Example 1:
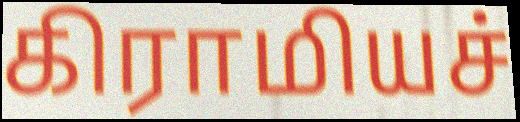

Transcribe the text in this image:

கிராமியச்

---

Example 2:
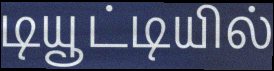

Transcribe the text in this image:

டியூட்டியில்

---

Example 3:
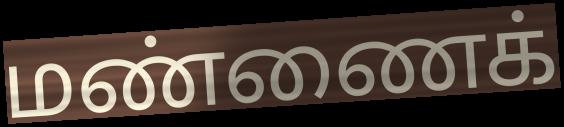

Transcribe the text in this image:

மண்ணைக்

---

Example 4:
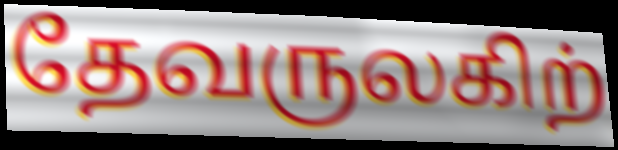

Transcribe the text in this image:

தேவருலகிற்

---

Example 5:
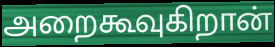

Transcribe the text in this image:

அறைகூவுகிறான்